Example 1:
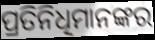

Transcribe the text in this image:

ପ୍ରତିନିଧିମାନଙ୍କର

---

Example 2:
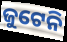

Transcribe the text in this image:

ଜୁଟେନି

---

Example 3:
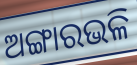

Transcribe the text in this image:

ଅଙ୍ଗାରଭଳି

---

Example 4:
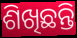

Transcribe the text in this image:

ଶିଖିଛନ୍ତି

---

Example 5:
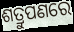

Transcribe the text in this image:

ଶତ୍ରୁପଣରେ